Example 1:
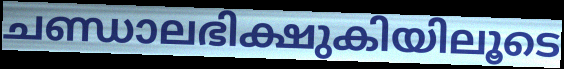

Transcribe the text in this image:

ചണ്ഡാലഭിക്ഷുകിയിലൂടെ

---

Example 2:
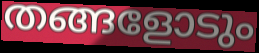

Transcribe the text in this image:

തങ്ങളോടും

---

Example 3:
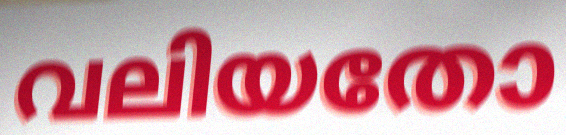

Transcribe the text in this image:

വലിയതോ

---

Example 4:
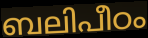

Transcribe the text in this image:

ബലിപീഠം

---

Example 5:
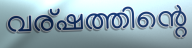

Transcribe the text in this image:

വര്ഷത്തിന്റെ